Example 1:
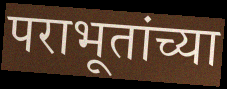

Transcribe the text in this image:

पराभूतांच्या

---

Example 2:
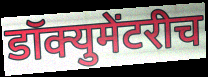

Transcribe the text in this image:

डॉक्युमेंटरीच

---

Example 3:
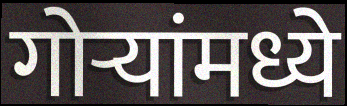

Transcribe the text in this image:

गोऱ्यांमध्ये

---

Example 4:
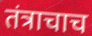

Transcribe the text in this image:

तंत्राचाच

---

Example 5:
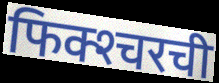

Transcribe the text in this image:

फिक्श्चरची